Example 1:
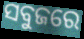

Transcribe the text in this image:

ସବୁଜରେ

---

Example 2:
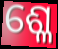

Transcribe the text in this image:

ଶ୍ଳେ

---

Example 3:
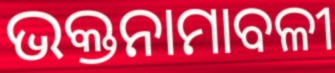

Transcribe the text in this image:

ଭକ୍ତନାମାବଳୀ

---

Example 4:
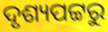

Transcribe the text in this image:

ଦୃଶ୍ୟପଟ୍ଟରୁ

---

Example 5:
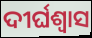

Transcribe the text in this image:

ଦୀର୍ଘଶ୍ବାସ